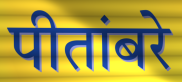
पीतांबरे